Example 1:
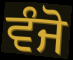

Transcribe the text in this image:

ਵੰਜੋ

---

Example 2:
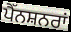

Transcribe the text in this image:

ਪੈੱਨਸ਼ਨਰਾਂ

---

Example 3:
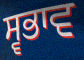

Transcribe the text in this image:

ਸ੍ਵਭਾਵ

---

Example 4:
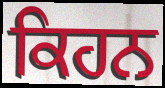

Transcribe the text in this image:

ਕਿਹਨ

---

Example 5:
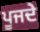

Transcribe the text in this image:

ਪੂਜਦੇ